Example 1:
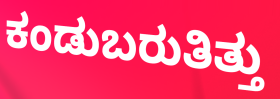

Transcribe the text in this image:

ಕಂಡುಬರುತಿತ್ತು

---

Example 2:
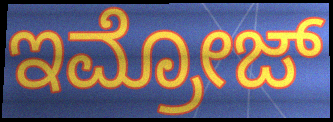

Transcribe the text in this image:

ಇಮ್ರೋಜ್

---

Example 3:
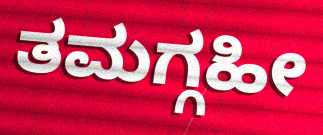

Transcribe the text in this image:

ತಮಗ್ಗಹೀ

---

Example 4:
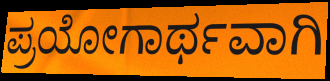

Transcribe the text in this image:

ಪ್ರಯೋಗಾರ್ಥವಾಗಿ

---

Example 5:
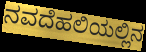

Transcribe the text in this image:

ನವದೆಹಲಿಯಲ್ಲಿನ